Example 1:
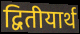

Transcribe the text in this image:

द्वितीयार्थ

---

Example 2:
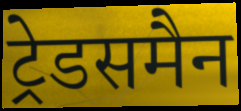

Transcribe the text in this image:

ट्रेडसमैन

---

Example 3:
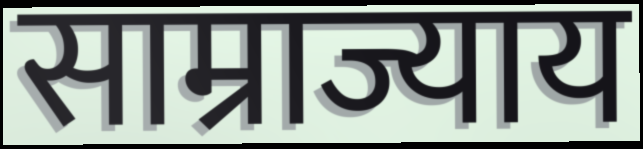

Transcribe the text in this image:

साम्राज्याय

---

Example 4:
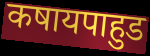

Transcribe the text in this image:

कषायपाहुड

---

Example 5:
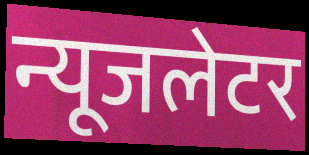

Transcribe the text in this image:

न्यूजलेटर